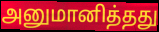
அனுமானித்தது